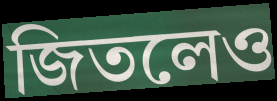
জিতলেও